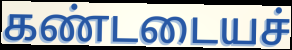
கண்டடையச்